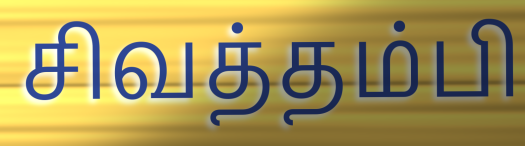
சிவத்தம்பி